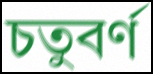
চতুবৰ্ণ